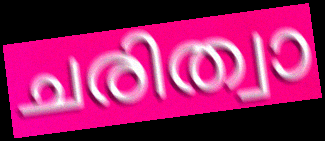
ചരിത്വാ